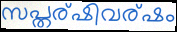
സപ്തര്ഷിവര്ഷം